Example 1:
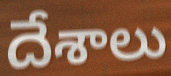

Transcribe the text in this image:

దేశాలు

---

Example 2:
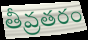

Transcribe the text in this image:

తీవ్రతరం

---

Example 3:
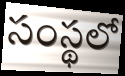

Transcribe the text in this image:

సంస్థలో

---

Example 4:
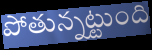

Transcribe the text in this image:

పోతున్నట్టుంది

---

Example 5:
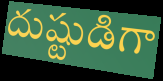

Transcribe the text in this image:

దుష్టుడిగా